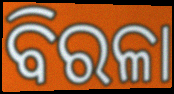
ବିରଳା